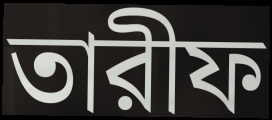
তারীফ